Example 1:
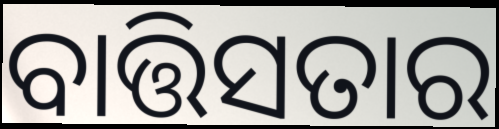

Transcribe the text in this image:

ବାତ୍ତିସତାର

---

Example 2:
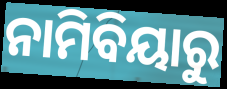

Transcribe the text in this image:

ନାମିବିୟାରୁ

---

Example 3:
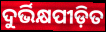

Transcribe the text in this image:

ଦୁର୍ଭିକ୍ଷପୀଡ଼ିତ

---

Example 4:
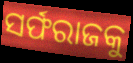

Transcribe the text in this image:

ସର୍ଫରାଜକୁ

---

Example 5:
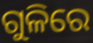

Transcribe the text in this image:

ଗୁଳିରେ